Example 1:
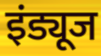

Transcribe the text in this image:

इंड्यूज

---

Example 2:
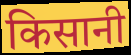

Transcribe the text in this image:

किसानी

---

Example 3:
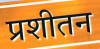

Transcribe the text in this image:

प्रशीतन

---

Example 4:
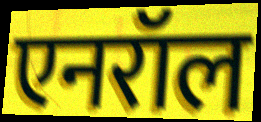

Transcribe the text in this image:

एनरॉल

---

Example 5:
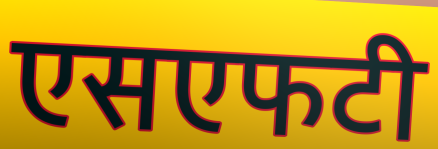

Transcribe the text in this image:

एसएफटी